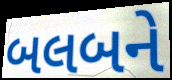
બલબને